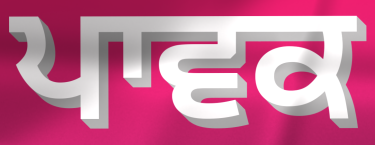
ਪਾਵਕ